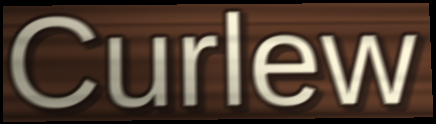
Curlew